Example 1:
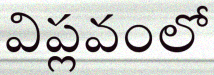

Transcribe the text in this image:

విప్లవంలో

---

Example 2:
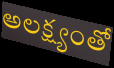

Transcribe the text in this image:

అలక్ష్యంతో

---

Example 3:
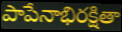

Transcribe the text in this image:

పాపేనాభిరక్షితా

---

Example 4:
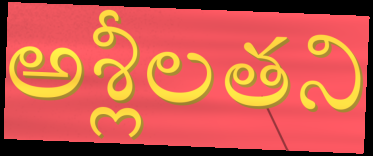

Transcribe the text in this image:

అశ్లీలతని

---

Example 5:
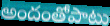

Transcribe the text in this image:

అందంతోపాటు